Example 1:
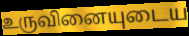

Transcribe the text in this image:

உருவினையுடைய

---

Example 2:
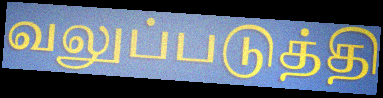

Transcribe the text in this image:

வலுப்படுத்தி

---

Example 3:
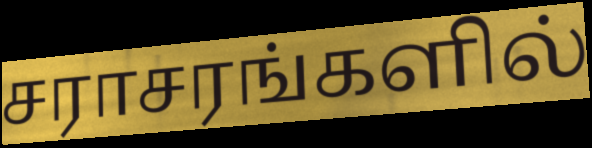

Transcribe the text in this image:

சராசரங்களில்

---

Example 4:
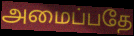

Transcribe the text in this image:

அமைப்பதே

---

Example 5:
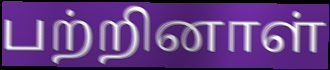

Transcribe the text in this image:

பற்றினாள்